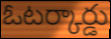
ఓటర్కార్డు